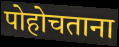
पोहोचताना